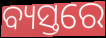
ବ୍ୟସ୍ତରେ